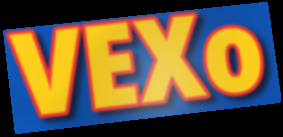
VEXo